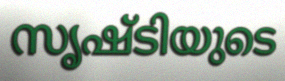
സൃഷ്ടിയുടെ